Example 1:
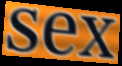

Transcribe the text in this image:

sex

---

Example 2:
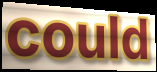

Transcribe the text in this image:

could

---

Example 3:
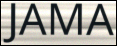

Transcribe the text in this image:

JAMA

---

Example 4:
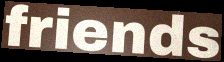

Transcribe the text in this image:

friends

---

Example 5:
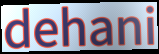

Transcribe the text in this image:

dehani